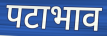
पटाभाव